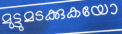
മുട്ടുമടക്കുകയോ